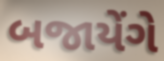
બજાયેંગે